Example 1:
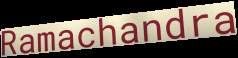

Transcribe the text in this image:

Ramachandra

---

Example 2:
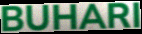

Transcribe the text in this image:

BUHARI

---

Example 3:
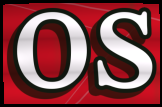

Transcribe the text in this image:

os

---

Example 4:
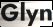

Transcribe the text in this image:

Glyn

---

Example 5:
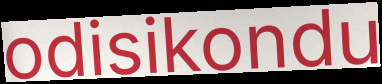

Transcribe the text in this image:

odisikondu